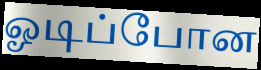
ஓடிப்போன